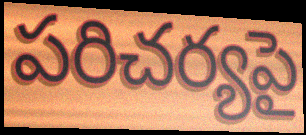
పరిచర్యపై